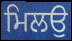
ਮਿਲਉ